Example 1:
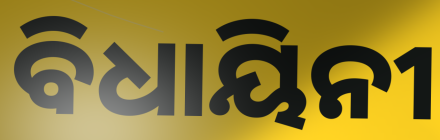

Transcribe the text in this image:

ବିଧାୟିନୀ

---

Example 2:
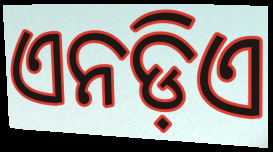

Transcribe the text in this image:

ଏନଡ଼ିଏ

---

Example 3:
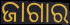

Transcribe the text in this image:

ଜାଗାର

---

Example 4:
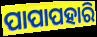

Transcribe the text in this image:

ପାପାପହାରି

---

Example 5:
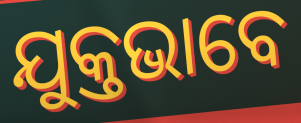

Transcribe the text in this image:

ଯୁକ୍ତଭାବେ